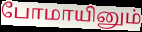
போமாயினும்